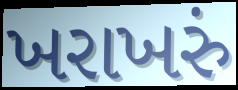
ખરાખરું